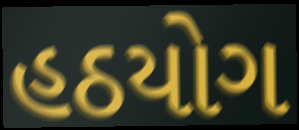
હઠયોગ